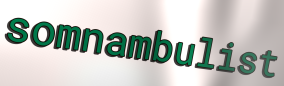
somnambulist